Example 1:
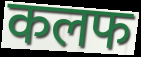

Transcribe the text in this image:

कलफ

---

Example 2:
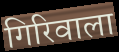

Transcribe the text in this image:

गिरिवाला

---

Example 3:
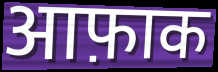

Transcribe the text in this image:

आफ़ाक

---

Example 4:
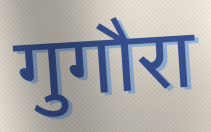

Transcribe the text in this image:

गुगौरा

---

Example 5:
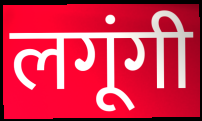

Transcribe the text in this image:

लगूंगी